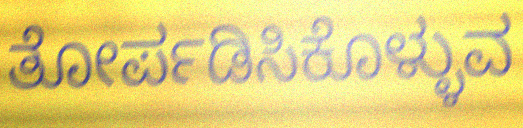
ತೋರ್ಪಡಿಸಿಕೊಳ್ಳುವ